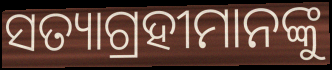
ସତ୍ୟାଗ୍ରହୀମାନଙ୍କୁ